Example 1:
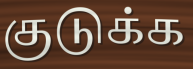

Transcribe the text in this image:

குடுக்க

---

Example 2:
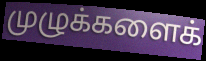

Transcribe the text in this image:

முழுக்களைக்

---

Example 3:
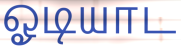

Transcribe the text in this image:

ஓடியாட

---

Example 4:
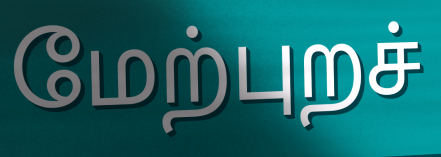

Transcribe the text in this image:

மேற்புறச்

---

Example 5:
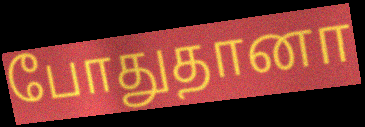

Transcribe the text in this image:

போதுதானா